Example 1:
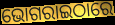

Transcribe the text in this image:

ଭୋଗରାଇଠାରେ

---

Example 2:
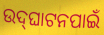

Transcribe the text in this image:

ଉଦ୍‌ଘାଟନପାଇଁ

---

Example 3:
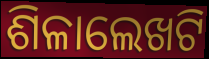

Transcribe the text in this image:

ଶିଳାଲେଖଟି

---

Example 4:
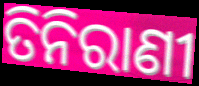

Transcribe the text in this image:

ତିନିରାଣୀ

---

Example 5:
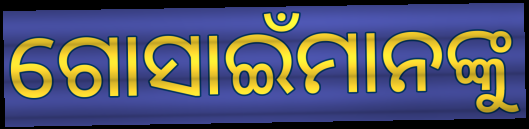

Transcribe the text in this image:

ଗୋସାଇଁମାନଙ୍କୁ